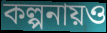
কল্পনায়ও